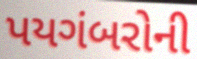
પયગંબરોની